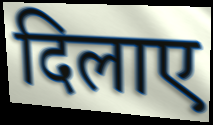
दिलाए